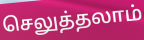
செலுத்தலாம்